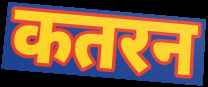
कतरन